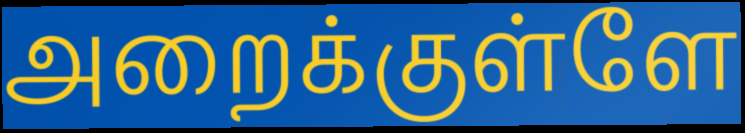
அறைக்குள்ளே